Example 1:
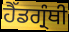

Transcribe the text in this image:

ਹੈੱਡਗ੍ਰੰਥੀ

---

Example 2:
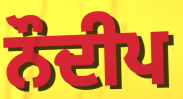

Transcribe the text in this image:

ਨੌਦੀਪ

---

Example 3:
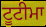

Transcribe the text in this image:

ਟੂਟੀਮਾ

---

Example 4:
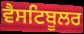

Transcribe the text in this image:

ਵੈਸਟਿਬੂਲਰ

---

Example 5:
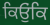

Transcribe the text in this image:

ਕਿਓੁਂਕਿ